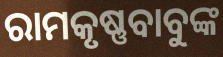
ରାମକୃଷ୍ଣବାବୁଙ୍କ